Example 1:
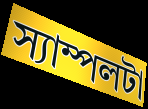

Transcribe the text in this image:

স্যাম্পলটা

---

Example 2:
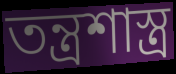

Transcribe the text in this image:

তন্ত্রশাস্ত্র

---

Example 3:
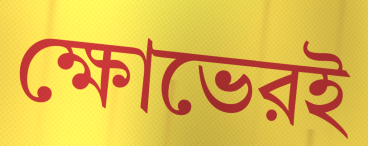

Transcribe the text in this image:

ক্ষোভেরই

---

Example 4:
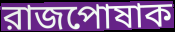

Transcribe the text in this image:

রাজপোষাক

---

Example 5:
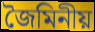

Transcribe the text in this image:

জৈমিনীয়